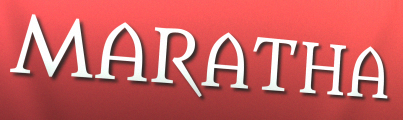
MARATHA